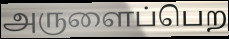
அருளைப்பெற